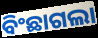
ବିଂଛାଗଲା